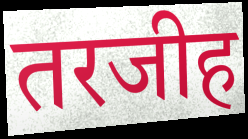
तरजीह